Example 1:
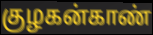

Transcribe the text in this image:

குழகன்காண்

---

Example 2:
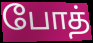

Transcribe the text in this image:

போத்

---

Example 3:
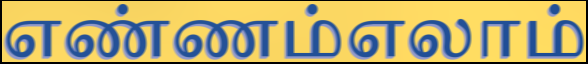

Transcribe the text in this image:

எண்ணம்எலாம்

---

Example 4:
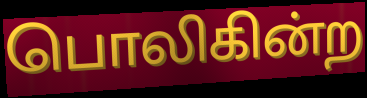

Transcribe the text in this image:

பொலிகின்ற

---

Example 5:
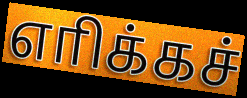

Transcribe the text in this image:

எரிக்கச்